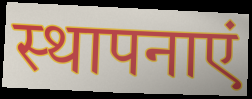
स्थापनाएं